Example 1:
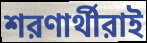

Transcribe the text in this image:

শরণার্থীরাই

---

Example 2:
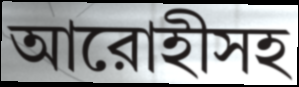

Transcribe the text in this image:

আরোহীসহ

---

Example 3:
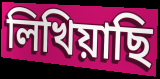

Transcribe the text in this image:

লিখিয়াছি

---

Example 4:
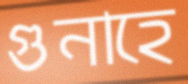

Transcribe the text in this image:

গুনাহে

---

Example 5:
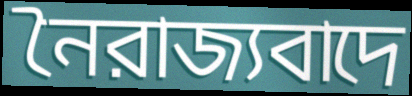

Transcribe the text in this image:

নৈরাজ্যবাদে